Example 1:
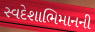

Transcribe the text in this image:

સ્વદેશાભિમાનની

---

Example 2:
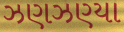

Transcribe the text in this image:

ઝણઝણ્યા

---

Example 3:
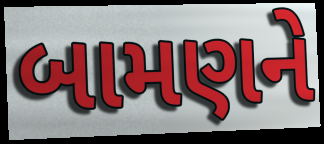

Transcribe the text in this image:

બામણને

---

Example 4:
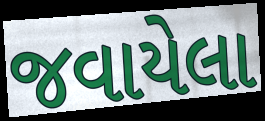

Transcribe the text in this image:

જવાયેલા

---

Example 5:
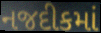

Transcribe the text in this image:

નજદીકમાં